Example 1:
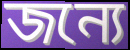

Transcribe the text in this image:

জন্যে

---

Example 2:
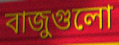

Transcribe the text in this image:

বাজুগুলো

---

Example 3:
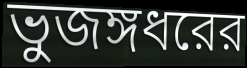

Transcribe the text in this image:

ভুজঙ্গধরের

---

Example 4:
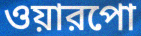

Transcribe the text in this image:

ওয়ারপো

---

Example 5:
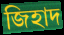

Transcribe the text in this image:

জিহাদ